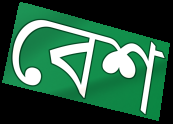
বেশ